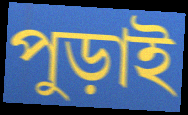
পুড়াই